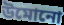
উমোনো